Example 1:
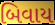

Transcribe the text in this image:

બિવાય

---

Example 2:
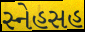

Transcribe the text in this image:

સ્નેહસહ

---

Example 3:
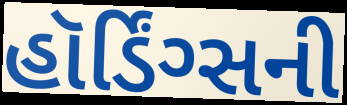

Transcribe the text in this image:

હૉર્ડિંગ્સની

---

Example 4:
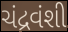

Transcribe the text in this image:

ચંદ્રવંશી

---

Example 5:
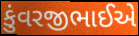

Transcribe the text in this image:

કુંવરજીભાઈએ